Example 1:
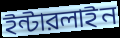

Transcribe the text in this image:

ইন্টারলাইন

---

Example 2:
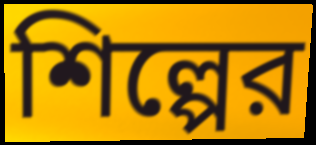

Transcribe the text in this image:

শিল্পের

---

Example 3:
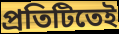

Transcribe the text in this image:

প্রতিটিতেই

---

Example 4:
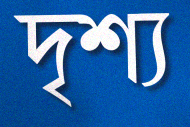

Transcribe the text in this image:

দৃশ্য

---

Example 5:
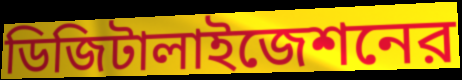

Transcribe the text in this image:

ডিজিটালাইজেশনের